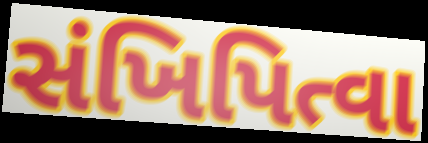
સંખિપિત્વા